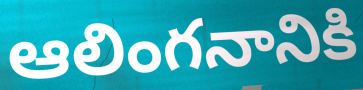
ఆలింగనానికి